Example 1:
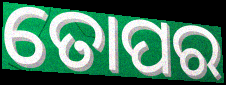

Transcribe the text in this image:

ତୋପର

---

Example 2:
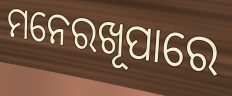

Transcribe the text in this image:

ମନେରଖୂପାରେ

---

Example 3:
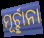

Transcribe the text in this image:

ମୂର୍ଚ୍ଛାନା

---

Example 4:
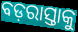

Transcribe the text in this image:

ବଡ଼ରାସ୍ତାକୁ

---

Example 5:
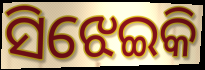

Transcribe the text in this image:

ସିଝେଇକି